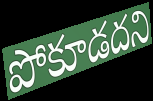
పోకూడదని